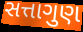
સત્તાગુણ